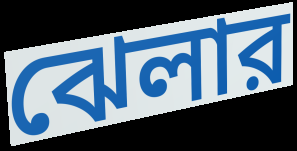
ঝেলার